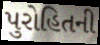
પુરોહિતની